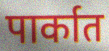
पार्कात